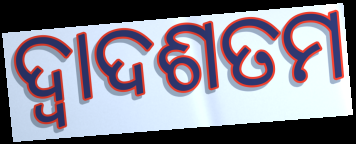
ଦ୍ୱାଦଶତମ